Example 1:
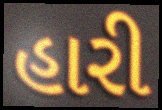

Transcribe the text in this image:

હારી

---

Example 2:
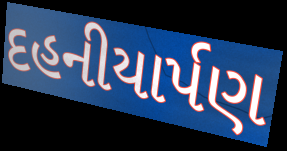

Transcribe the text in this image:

દહનીયાર્પણ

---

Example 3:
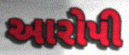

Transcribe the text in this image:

આરોપી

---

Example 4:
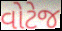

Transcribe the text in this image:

વોટેજ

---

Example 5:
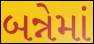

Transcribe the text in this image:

બન્નેમાં